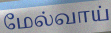
மேல்வாய்